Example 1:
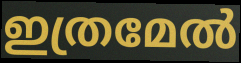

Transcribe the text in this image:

ഇത്രമേൽ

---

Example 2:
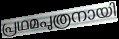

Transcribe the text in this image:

പ്രഥമപുത്രനായി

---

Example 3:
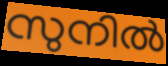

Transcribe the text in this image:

സുനിൽ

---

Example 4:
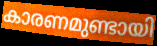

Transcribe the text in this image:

കാരണമുണ്ടായി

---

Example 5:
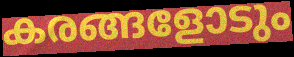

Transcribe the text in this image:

കരങ്ങളോടും